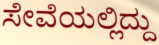
ಸೇವೆಯಲ್ಲಿದ್ದು